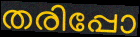
തരിപ്പോ